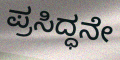
ಪ್ರಸಿದ್ಧನೇ